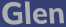
Glen